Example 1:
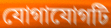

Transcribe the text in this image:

যোগাযোগটি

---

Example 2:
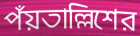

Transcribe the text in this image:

পঁয়তাল্লিশের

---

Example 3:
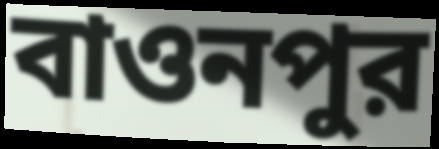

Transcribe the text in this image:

বাওনপুর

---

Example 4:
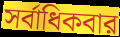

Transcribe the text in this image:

সর্বাধিকবার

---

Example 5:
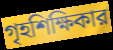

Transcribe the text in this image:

গৃহশিক্ষিকার